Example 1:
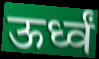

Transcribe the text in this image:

ऊर्ध्वं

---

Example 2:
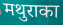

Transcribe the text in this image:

मथुराका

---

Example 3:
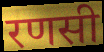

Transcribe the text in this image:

रणसी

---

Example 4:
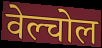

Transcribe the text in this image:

वेल्चोल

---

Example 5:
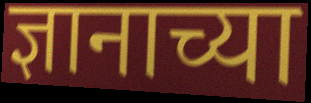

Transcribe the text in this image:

ज्ञानाच्या